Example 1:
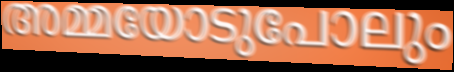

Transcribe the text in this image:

അമ്മയോടുപോലും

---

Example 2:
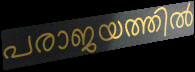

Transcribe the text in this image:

പരാജയത്തിൽ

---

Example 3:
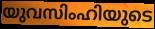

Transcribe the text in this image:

യുവസിംഹിയുടെ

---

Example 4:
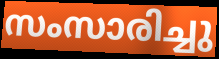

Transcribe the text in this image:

സംസാരിച്ചു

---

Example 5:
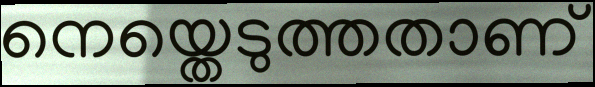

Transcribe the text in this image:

നെയ്തെടുത്തതാണ്